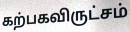
கற்பகவிருட்சம்